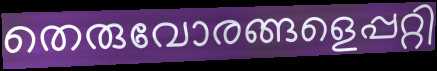
തെരുവോരങ്ങളെപ്പറ്റി